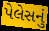
પેલેસનું